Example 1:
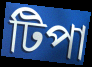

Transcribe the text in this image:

টিপা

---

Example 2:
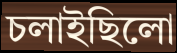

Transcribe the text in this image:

চলাইছিলো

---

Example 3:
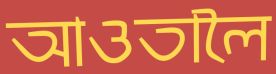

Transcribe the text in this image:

আওতালৈ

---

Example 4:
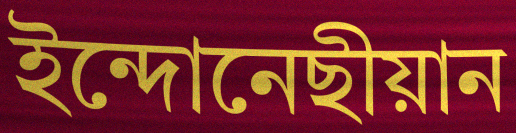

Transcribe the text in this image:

ইন্দোনেছীয়ান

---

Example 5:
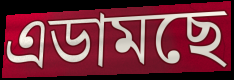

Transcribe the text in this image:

এডামছে